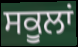
ਸਕੂਲਾਂ